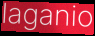
laganio